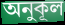
অনুকূল